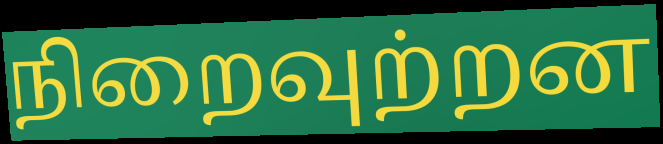
நிறைவுற்றன